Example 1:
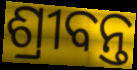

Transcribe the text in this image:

ଶ୍ରୀବନ୍ତ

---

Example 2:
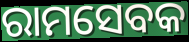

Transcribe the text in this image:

ରାମସେବକ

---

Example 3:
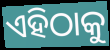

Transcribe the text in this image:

ଏହିଠାକୁ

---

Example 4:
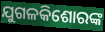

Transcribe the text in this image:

ଯୁଗଳକିଶୋରଙ୍କ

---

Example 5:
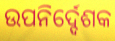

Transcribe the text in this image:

ଉପନିର୍ଦ୍ଦେଶକ